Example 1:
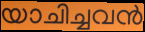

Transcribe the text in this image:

യാചിച്ചവൻ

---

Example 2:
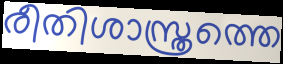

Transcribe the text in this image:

രീതിശാസ്ത്രത്തെ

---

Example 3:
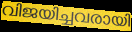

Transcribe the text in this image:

വിജയിച്ചവരായി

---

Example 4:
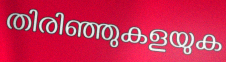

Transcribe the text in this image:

തിരിഞ്ഞുകളയുക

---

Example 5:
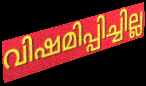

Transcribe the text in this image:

വിഷമിപ്പിച്ചില്ല